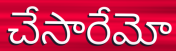
చేసారేమో